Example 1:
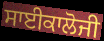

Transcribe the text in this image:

ਸਾਈਕਾਲੋਜੀ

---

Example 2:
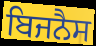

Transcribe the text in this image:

ਬਿਜਨੈਸ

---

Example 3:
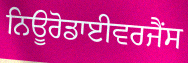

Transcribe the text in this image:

ਨਿਊਰੋਡਾਈਵਰਜੈਂਸ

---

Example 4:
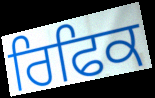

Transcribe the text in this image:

ਰਿਫਿਕ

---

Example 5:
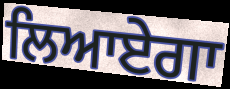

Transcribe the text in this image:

ਲਿਆਏਗਾ